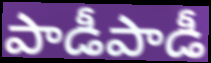
పాడీపాడీ